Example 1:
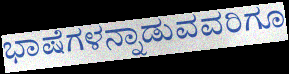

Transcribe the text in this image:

ಭಾಷೆಗಳನ್ನಾಡುವವರಿಗೂ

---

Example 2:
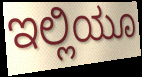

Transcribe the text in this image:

ಇಲ್ಲಿಯೂ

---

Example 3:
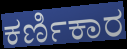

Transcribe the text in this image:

ಕರ್ಣಿಕಾರ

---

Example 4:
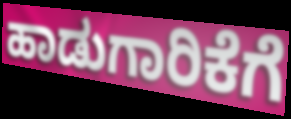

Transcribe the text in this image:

ಹಾಡುಗಾರಿಕೆಗೆ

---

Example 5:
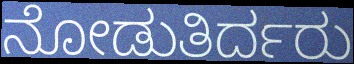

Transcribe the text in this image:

ನೋಡುತಿರ್ದರು